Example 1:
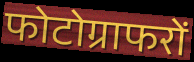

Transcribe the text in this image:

फोटोग्राफरों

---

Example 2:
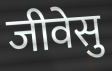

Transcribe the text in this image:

जीवेसु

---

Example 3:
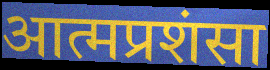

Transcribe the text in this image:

आत्मप्रशंसा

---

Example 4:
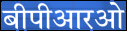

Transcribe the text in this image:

बीपीआरओ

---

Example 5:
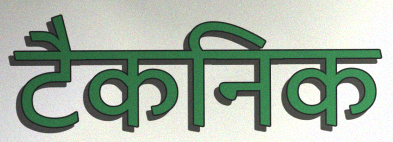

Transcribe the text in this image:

टैकनिक